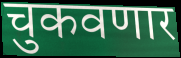
चुकवणार